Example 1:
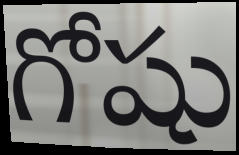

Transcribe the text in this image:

గోషు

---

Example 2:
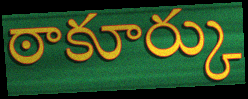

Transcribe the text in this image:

ఠాకూర్కు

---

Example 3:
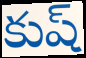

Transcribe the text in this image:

కుష్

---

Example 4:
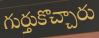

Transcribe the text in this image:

గుర్తుకొచ్చారు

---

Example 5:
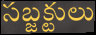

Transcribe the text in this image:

సబ్జక్టులు